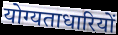
योग्यताधारियों